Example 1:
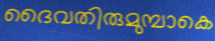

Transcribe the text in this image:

ദൈവതിരുമുമ്പാകെ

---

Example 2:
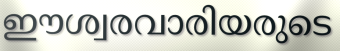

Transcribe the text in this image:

ഈശ്വരവാരിയരുടെ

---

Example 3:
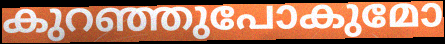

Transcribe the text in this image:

കുറഞ്ഞുപോകുമോ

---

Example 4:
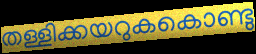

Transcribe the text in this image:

തള്ളിക്കയറുകകൊണ്ടു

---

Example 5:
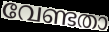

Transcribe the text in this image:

വേണ്ടതാ